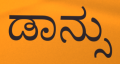
ಡಾನ್ಸು